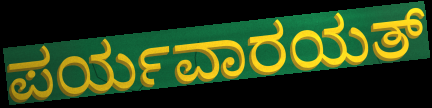
ಪರ್ಯವಾರಯತ್